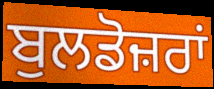
ਬੁਲਡੋਜ਼ਰਾਂ